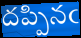
దప్పినఁ